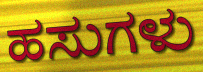
ಹಸುಗಳು